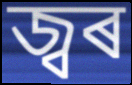
জ্বৰ